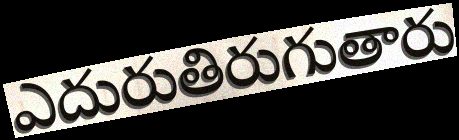
ఎదురుతిరుగుతారు